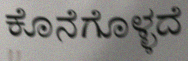
ಕೊನೆಗೊಳ್ಳದೆ